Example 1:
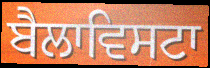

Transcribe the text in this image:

ਬੈਲਾਵਿਸਟਾ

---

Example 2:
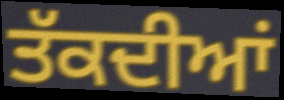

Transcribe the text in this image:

ਤੱਕਦੀਆਂ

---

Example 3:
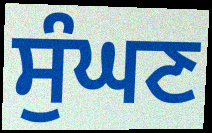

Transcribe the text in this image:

ਸੁੰਘਣ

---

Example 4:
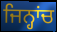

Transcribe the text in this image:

ਜਿਨ੍ਹਾਂਚ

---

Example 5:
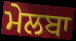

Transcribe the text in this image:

ਮੇਲਬਾ